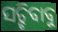
ସଚ୍ଚିବାବୁ